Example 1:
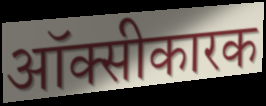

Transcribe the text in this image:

ऑक्सीकारक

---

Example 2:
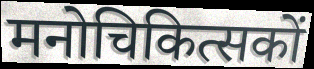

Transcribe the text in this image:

मनोचिकित्सकों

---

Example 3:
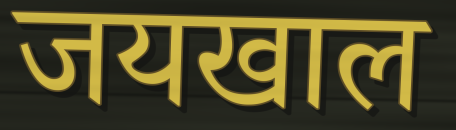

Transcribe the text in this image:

जयखाल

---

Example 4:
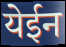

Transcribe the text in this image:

येईन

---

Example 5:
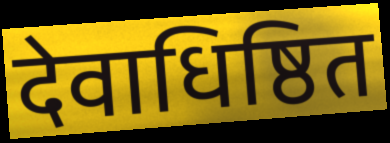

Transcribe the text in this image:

देवाधिष्ठित